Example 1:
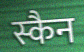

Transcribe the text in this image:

स्‍कैन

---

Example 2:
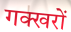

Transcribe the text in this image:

गक्खरों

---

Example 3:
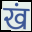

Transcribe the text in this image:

खं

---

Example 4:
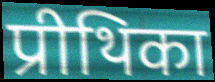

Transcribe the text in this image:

प्रीथिका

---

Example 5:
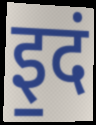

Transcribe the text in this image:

इ॒दं